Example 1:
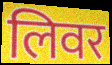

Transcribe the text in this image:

लिवर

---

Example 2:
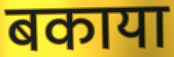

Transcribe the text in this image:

बकाया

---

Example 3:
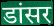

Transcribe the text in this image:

डांसर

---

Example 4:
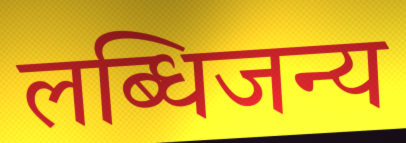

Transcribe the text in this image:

लब्धिजन्य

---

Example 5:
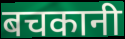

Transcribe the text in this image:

बचकानी